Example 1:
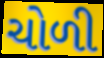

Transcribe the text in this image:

ચોળી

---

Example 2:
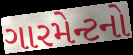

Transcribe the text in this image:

ગારમેન્ટનો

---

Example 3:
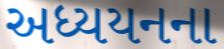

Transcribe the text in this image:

અધ્યયનના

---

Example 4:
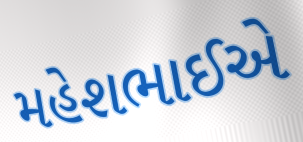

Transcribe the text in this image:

મહેશભાઈએ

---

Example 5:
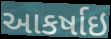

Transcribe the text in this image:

આકર્ષાઇ